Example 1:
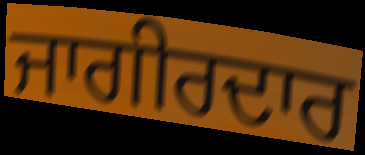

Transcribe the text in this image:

ਜਾਗੀਰਦਾਰ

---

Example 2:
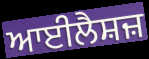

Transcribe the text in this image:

ਆਈਲੈਸ਼ਜ਼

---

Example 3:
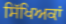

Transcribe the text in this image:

ਸਿੱਖਿਅਕਾਂ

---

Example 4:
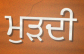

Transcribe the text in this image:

ਮੁੜਦੀ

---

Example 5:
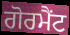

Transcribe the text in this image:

ਗੋਰਮੈਂਟ